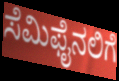
ಸೆಮಿಫೈನಲಿಗೆ